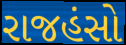
રાજહંસો